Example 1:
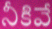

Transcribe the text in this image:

నీకివే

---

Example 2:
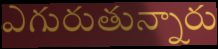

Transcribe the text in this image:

ఎగురుతున్నారు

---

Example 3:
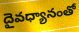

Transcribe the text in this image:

దైవధ్యానంతో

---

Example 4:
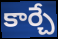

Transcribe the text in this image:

కార్చే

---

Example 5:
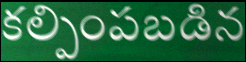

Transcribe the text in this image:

కల్పింపబడిన